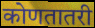
कोणतातरी